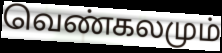
வெண்கலமும்